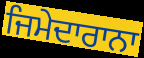
ਜਿਮੇਦਾਰਾਨਾ